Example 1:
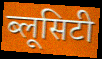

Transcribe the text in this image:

ब्लूसिटी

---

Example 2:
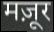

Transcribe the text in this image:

मज़ूर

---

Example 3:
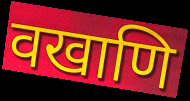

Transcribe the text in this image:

वखाणि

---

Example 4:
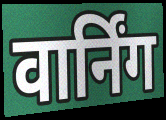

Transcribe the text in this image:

वार्निंग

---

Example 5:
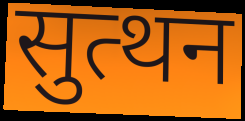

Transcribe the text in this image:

सुत्थन